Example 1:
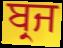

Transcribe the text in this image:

ਬ੍ਰਜ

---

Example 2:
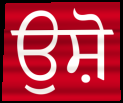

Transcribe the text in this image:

ਉਸ਼ੋ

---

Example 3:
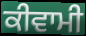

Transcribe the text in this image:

ਕੀਵਾਮੀ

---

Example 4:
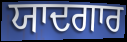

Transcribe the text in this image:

ਯਾਦਗਾਰ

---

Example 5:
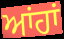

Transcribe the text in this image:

ਆਂਹਾਂ